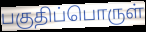
பகுதிப்பொருள்